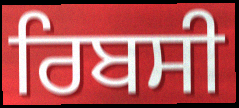
ਰਿਬਸੀ